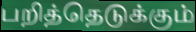
பறித்தெடுக்கும்